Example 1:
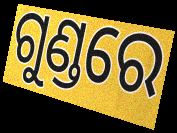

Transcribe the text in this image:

ଗୁଣ୍ଡରେ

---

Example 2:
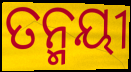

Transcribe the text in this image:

ତନ୍ମୟୀ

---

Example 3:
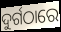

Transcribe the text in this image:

ଦୁର୍ଗଠାରେ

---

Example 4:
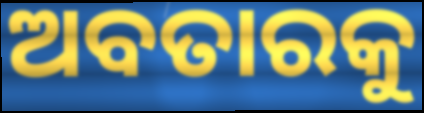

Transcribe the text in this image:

ଅବତାରକୁ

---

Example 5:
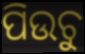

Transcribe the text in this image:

ପିଉଚୁ